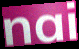
nai